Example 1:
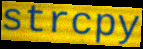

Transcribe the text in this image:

strcpy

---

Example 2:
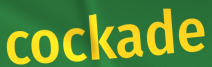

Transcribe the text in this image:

cockade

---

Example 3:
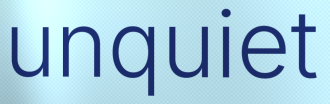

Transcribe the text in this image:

unquiet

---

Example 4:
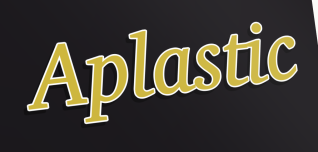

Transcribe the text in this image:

Aplastic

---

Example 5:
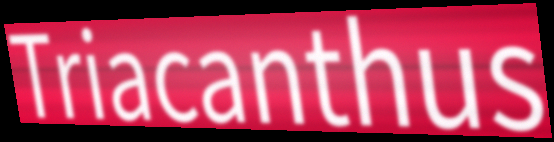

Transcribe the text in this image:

Triacanthus